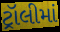
ટ્રૉલીમાં